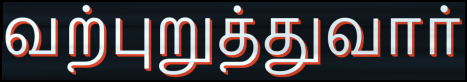
வற்புறுத்துவார்